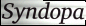
Syndopa